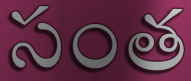
సంత